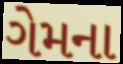
ગેમના